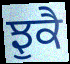
ਝੁਕੈ